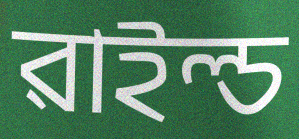
ৱাইল্ড